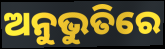
ଅନୁଭୁତିରେ